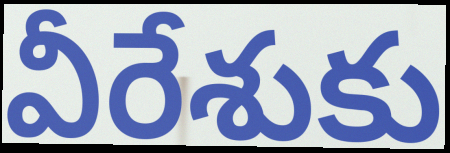
వీరేశుకు